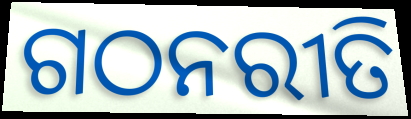
ଗଠନରୀତି